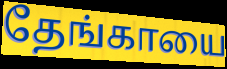
தேங்காயை